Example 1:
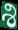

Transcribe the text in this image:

శి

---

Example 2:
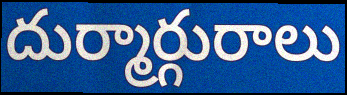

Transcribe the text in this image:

దుర్మార్గురాలు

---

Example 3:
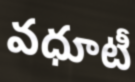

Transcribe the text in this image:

వధూటీ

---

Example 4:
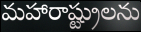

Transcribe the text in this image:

మహారాష్ట్రులను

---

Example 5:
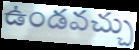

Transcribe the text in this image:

ఉండవచ్చు